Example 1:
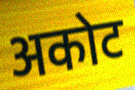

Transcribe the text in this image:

अकोट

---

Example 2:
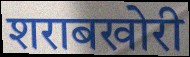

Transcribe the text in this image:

शराबखोरी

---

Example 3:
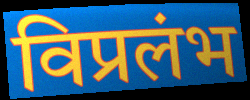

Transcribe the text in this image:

विप्रलंभ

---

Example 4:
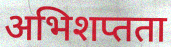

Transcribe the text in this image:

अभिशप्तता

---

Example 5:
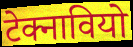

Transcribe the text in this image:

टेक्नावियो